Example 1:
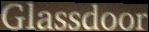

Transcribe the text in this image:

Glassdoor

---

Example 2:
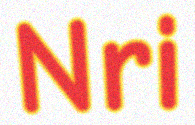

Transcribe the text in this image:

Nri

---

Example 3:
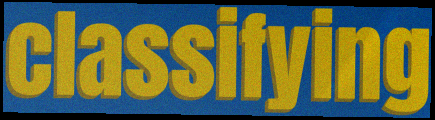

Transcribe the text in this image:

classifying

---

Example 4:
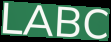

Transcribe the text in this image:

LABC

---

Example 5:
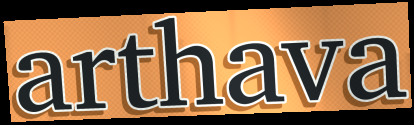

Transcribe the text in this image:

arthava